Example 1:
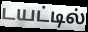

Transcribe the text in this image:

டயட்டில்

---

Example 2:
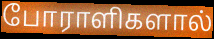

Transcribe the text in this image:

போராளிகளால்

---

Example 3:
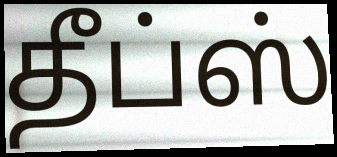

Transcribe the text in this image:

தீப்ஸ்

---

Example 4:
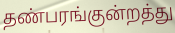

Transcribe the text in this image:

தண்பரங்குன்றத்து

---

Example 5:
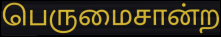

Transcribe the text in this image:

பெருமைசான்ற